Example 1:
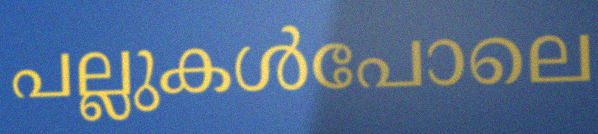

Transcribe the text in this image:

പല്ലുകൾപോലെ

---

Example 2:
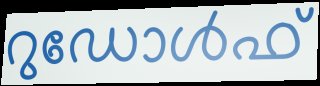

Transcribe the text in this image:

റുഡോൾഫ്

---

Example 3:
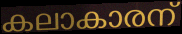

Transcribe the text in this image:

കലാകാരന്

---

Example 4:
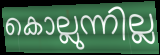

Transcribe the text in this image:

കൊല്ലുന്നില്ല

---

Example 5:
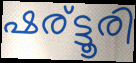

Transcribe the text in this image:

ഷര്ട്ടൂരി